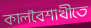
কালবৈশাখীতে